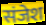
संजेश